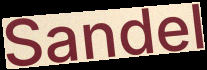
Sandel